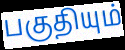
பகுதியும்